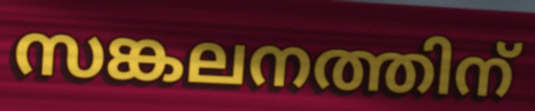
സങ്കലനത്തിന്